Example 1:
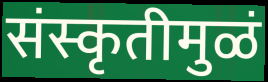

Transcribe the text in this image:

संस्कृतीमुळं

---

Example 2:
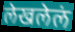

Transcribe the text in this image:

लेखलेलं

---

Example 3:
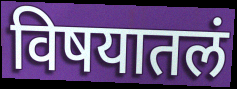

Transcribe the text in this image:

विषयातलं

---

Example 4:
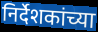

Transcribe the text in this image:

निर्देशकांच्या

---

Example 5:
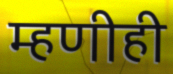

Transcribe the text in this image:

म्हणीही